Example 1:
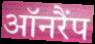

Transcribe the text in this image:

ऑनरैंप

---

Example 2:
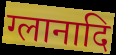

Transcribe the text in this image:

ग्लानादि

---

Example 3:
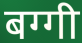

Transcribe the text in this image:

बग्गी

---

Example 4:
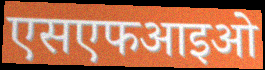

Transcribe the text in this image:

एसएफआइओ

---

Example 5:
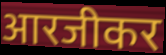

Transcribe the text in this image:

आरजीकर